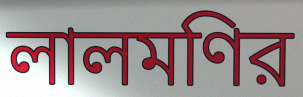
লালমণির